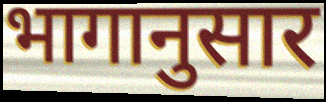
भागानुसार